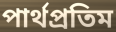
পার্থপ্রতিম